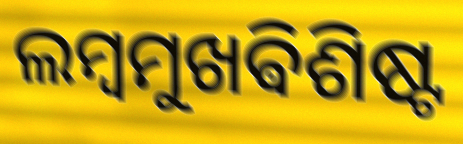
ଲମ୍ବମୁଖଵିଶିଷ୍ଟ